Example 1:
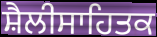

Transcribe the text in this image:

ਸ਼ੈਲੀਸਾਹਿਤਕ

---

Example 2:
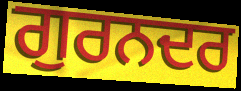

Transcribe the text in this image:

ਗੁਰਨਦਰ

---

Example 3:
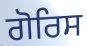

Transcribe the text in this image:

ਗੋਰਿਸ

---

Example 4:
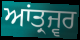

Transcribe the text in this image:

ਆਂਤ੍ਰਜ੍ਵਰ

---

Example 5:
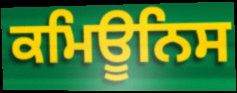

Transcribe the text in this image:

ਕਮਿਊਨਿਸ